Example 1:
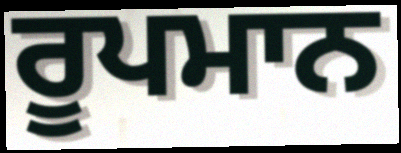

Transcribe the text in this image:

ਰੂਪਮਾਨ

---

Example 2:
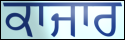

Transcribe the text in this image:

ਕਾਜਾਰ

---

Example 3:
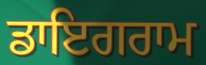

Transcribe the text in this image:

ਡਾਇਗਰਾਮ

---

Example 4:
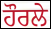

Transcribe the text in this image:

ਹੌਰਲੇ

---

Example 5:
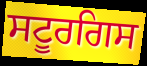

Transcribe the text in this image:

ਸਟੂਰਗਿਸ